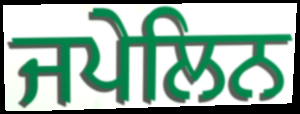
ਜਪੇਲਿਨ